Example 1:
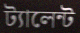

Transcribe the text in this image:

ট্যালেন্ট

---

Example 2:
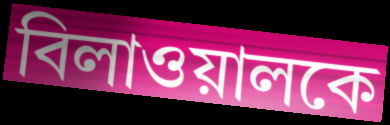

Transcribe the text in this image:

বিলাওয়ালকে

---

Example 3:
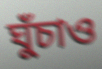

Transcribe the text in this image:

ঘুঁচাও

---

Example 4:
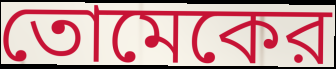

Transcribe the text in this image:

তোমেকের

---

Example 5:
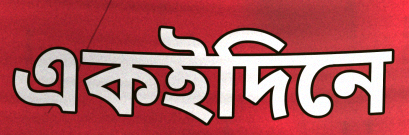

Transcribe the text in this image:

একইদিনে